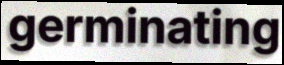
germinating